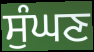
ਸੁੰਘਣ